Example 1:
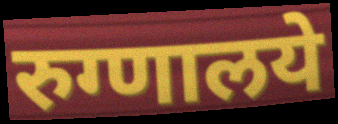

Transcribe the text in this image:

रुग्णालये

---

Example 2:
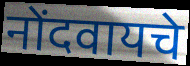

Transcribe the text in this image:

नोंदवायचे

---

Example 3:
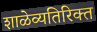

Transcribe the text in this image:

शाळेव्यतिरिक्त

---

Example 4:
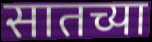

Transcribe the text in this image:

सातच्या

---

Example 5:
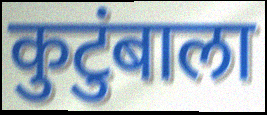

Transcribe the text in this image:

कुटुंबाला